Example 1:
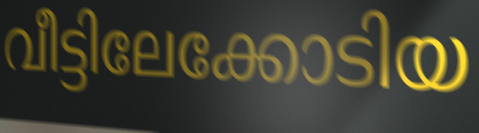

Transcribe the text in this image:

വീട്ടിലേക്കോടിയ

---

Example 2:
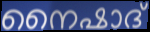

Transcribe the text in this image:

നൈഷാദ്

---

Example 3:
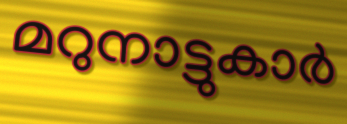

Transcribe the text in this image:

മറുനാട്ടുകാർ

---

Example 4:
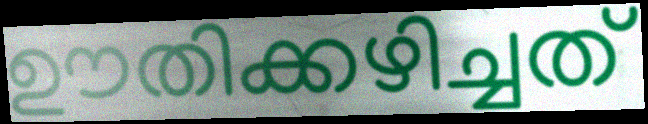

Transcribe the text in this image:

ഊതിക്കഴിച്ചത്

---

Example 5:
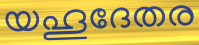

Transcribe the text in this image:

യഹൂദേതര